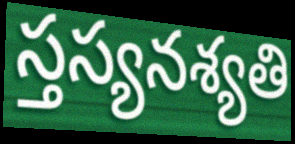
స్తస్యనశ్యతి